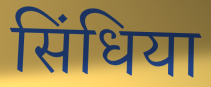
सिंधिया